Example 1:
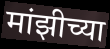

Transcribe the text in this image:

मांझीच्या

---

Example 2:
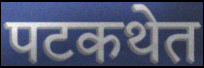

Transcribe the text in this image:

पटकथेत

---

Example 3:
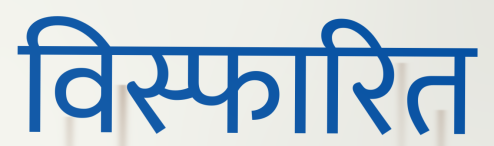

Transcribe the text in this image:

विस्फारित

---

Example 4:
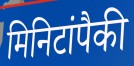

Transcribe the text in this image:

मिनिटांपैकी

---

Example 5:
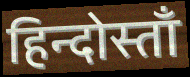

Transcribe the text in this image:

हिन्दोस्ताँ